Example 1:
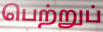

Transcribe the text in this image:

பெற்றுப்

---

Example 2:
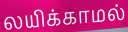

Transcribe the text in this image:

லயிக்காமல்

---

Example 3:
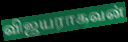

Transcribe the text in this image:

விஜயராகவன்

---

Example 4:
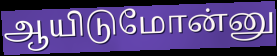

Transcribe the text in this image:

ஆயிடுமோன்னு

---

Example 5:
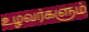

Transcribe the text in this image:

உழவர்களும்